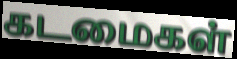
கடமைகள்